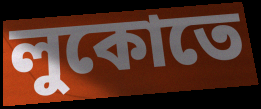
লুকোতে